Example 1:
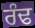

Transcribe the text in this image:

ਰੰਢ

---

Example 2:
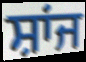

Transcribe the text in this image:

ਸ਼ਾਂਜ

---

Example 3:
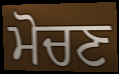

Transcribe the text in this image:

ਮੋਚਣ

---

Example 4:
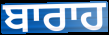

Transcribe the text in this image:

ਬਾਰਾਹ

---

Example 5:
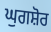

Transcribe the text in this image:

ਘੁਗਸ਼ੋਰ